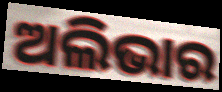
ଅଲିଭାର